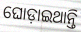
ଘୋଡ଼ାଇଥାନ୍ତି